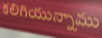
కలిగియున్నాము